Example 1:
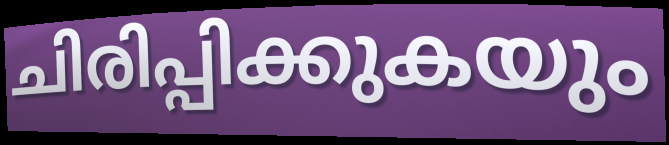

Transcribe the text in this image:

ചിരിപ്പിക്കുകയും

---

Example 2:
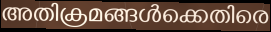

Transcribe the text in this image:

അതിക്രമങ്ങൾക്കെതിരെ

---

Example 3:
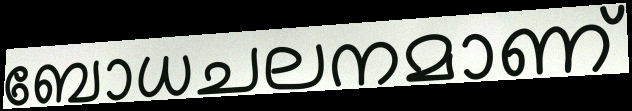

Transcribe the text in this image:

ബോധചലനമാണ്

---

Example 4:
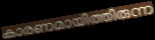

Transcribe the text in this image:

കാരണമായിത്തീരുന്ന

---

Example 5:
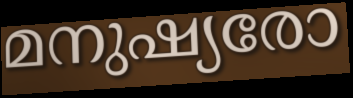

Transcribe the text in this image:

മനുഷ്യരോ